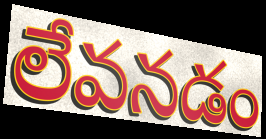
లేవనడం